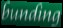
bunding